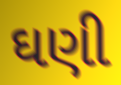
ઘણી